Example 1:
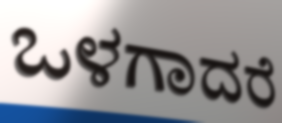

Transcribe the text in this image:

ಒಳಗಾದರೆ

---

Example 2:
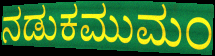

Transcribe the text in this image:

ನಡುಕಮುಮಂ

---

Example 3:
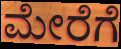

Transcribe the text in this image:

ಮೇರೆಗೆ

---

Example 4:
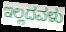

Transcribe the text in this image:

ಇಲ್ಲದವಳು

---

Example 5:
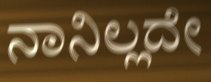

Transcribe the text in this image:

ನಾನಿಲ್ಲದೇ